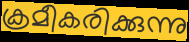
ക്രമീകരിക്കുന്നു